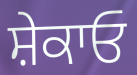
ਸ਼ੇਕਾਓ